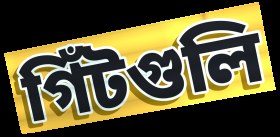
গিঁটগুলি